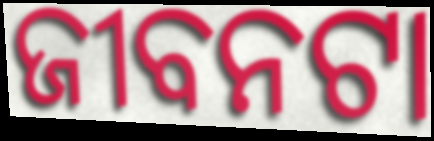
ଜୀବନଟା